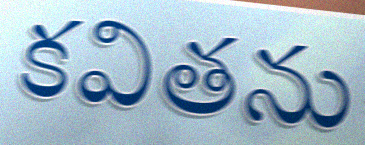
కవితను